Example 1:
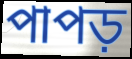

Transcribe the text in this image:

পাপড়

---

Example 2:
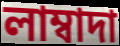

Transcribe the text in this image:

লাম্বাদা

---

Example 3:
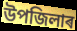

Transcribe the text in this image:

উপজিলাৰ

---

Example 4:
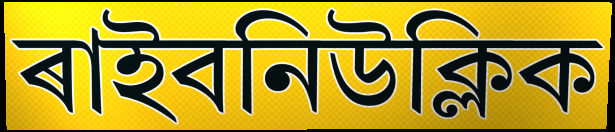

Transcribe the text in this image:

ৰাইবনিউক্লিক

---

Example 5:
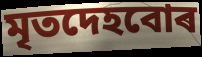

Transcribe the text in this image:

মৃতদেহবোৰ